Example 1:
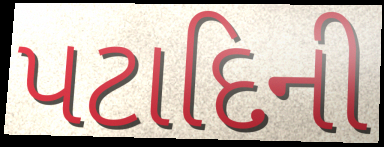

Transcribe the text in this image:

પટાદિની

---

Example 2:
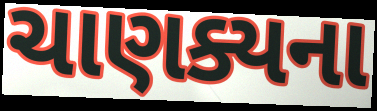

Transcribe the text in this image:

ચાણક્યના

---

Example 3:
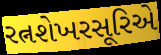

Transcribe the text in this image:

રત્નશેખરસૂરિએ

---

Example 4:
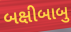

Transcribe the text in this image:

બક્ષીબાબુ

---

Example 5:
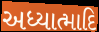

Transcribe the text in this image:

અધ્યાત્માદિ